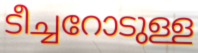
ടീച്ചറോടുള്ള